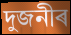
দুজনীৰ